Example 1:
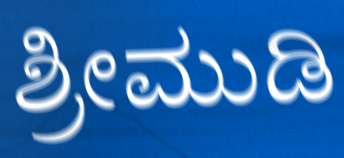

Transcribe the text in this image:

ಶ್ರೀಮುಡಿ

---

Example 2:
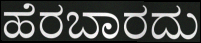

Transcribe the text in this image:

ಹೆರಬಾರದು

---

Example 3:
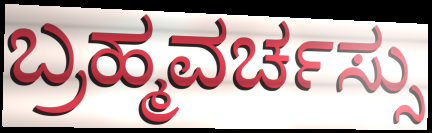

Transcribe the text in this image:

ಬ್ರಹ್ಮವರ್ಚಸ್ಸು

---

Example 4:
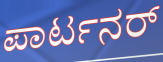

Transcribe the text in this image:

ಪಾರ್ಟನರ್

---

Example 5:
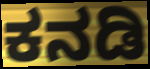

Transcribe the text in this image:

ಕನಡಿ